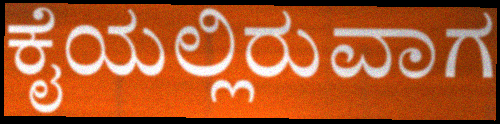
ಕೈಯಲ್ಲಿರುವಾಗ